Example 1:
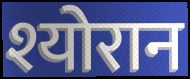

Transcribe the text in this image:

श्योरान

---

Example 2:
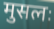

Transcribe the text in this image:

मुसलः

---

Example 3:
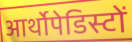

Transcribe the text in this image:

आर्थोपेडिस्टों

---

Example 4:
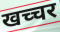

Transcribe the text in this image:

खच्चर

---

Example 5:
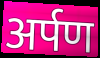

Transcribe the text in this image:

अर्पण